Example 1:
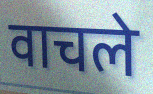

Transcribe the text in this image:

वाचले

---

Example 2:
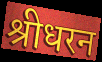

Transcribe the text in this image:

श्रीधरन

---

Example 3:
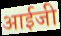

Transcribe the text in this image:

आईजी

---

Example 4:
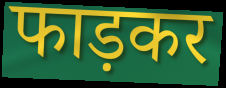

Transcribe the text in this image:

फाड़कर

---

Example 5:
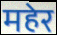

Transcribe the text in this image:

महेर